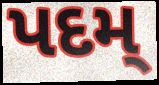
પદમ્